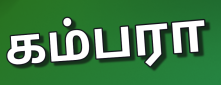
கம்பரா